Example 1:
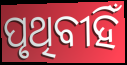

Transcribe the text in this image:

ପୃଥିବୀହିଁ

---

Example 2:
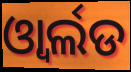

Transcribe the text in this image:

ଓ୍ବାର୍ଲଡ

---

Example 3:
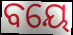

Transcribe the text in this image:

ବୟେ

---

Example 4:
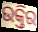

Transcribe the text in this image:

ଉକ୍ତିର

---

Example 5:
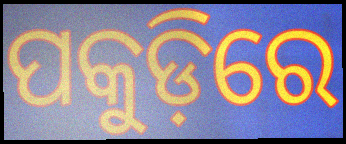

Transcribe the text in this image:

ପକୁଡ଼ିରେ